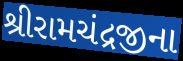
શ્રીરામચંદ્રજીના